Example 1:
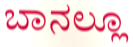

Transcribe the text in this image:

ಬಾನಲ್ಲೂ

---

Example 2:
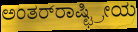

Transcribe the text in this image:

ಅಂತರ್‌ರಾಷ್ಟ್ರೀಯ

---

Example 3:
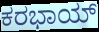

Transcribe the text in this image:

ಕರಭಾಯ್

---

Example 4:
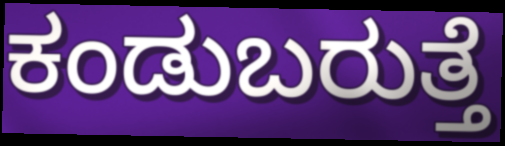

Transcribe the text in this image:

ಕಂಡುಬರುತ್ತೆ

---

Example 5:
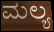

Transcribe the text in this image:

ಮಲ್ಯ